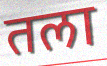
तला